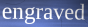
engraved